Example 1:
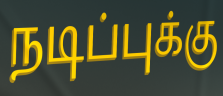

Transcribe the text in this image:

நடிப்புக்கு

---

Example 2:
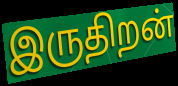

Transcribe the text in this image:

இருதிறன்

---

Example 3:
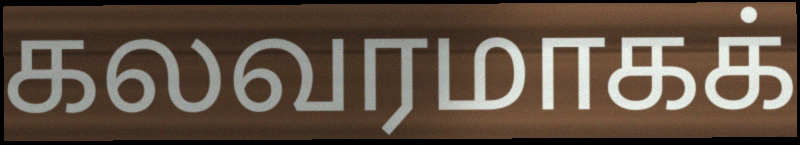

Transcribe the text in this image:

கலவரமாகக்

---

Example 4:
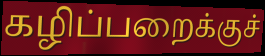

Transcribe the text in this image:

கழிப்பறைக்குச்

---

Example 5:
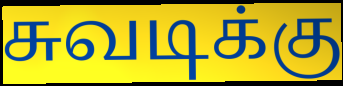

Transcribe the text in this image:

சுவடிக்கு